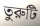
তুরুটি